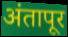
अंतापूर